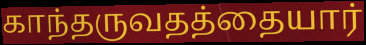
காந்தருவதத்தையார்